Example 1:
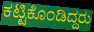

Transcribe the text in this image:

ಕಟ್ಟಿಕೊಂಡಿದ್ದರು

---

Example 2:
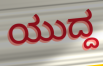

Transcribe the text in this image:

ಯುದ್ದ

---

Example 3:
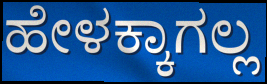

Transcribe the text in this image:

ಹೇಳಕ್ಕಾಗಲ್ಲ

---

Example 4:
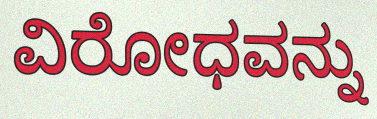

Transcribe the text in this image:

ವಿರೋಧವನ್ನು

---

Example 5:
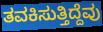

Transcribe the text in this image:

ತವಕಿಸುತ್ತಿದ್ದೆವು